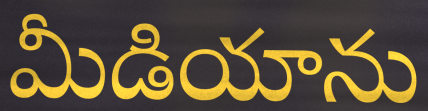
మీడియాను